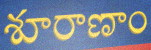
శూరాణాం